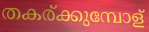
തകര്ക്കുമ്പോള്